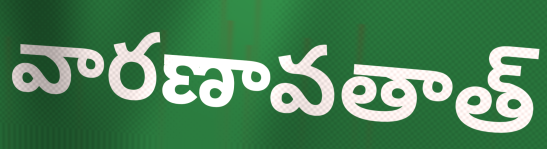
వారణావతాత్